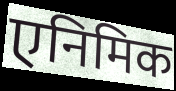
एनिमिक